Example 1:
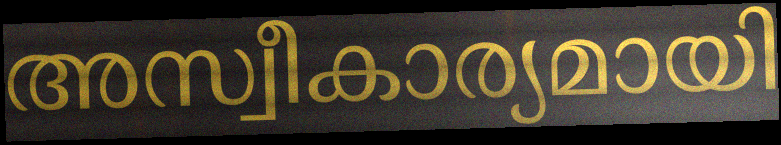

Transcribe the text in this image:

അസ്വീകാര്യമായി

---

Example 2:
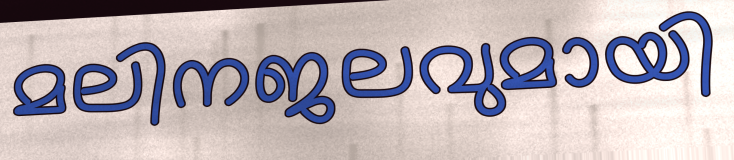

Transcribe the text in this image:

മലിനജലവുമായി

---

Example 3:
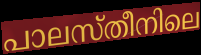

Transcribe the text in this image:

പാലസ്തീനിലെ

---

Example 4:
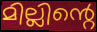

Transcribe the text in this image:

മില്ലിന്റെ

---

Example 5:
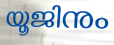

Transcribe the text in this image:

യൂജിനും